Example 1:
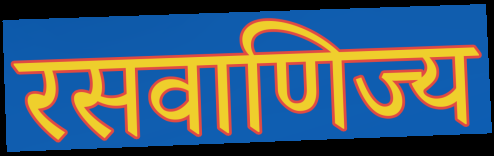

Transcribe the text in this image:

रसवाणिज्य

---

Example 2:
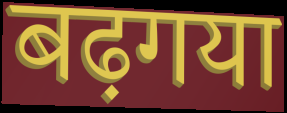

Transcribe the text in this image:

बढ़गया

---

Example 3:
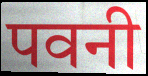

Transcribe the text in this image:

पवनी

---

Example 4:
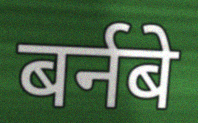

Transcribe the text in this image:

बर्नबे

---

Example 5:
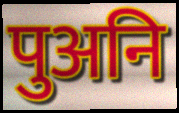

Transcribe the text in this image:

पुअनि